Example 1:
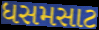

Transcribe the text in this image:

ધસમસાટ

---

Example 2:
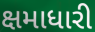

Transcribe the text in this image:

ક્ષમાધારી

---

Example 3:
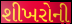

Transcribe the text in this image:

શીખરોની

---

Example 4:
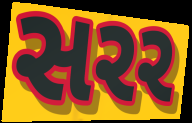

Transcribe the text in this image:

સરર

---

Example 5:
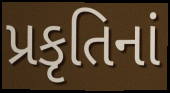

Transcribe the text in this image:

પ્રકૃતિનાં